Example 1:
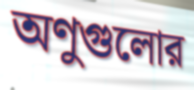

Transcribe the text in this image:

অণুগুলোর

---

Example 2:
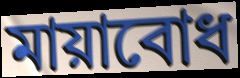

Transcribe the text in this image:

মায়াবোধ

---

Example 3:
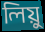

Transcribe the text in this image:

লিয়ু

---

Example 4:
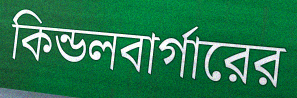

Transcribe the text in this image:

কিন্ডলবার্গারের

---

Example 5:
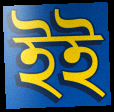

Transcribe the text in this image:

ইই